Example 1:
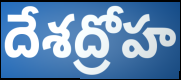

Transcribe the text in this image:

దేశద్రోహ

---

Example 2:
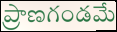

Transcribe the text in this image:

ప్రాణగండమే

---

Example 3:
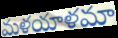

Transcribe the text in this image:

మళయాళమా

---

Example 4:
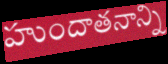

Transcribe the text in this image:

హుందాతనాన్ని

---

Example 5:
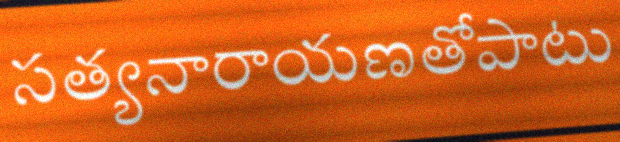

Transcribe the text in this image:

సత్యనారాయణతోపాటు